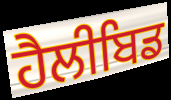
ਹੈਲੀਬਿਡ